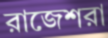
রাজেশরা